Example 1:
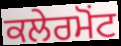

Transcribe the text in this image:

ਕਲੇਰਮੋਂਟ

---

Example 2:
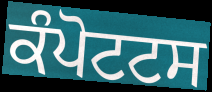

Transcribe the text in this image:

ਕੰਪੋਟਟਸ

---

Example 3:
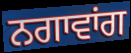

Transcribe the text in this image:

ਨਗਾਵਾਂਗ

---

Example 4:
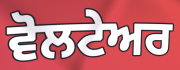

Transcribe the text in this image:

ਵੋਲਟੇਅਰ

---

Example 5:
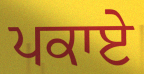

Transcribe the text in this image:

ਪਕਾਏ